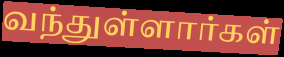
வந்துள்ளார்கள்